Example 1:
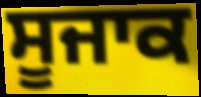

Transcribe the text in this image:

ਸੂਜਾਕ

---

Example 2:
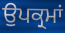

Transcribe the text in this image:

ਉਪਕ੍ਰਮਾਂ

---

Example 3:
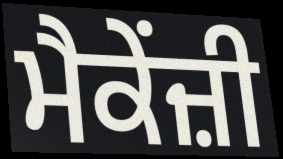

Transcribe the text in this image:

ਮੈਕੇਂਜ਼ੀ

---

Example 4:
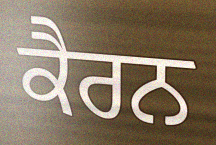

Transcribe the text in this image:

ਕੈਰਨ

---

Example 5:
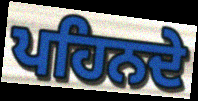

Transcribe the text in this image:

ਪਹਿਨਦੇ